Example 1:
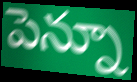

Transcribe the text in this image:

పెన్నూ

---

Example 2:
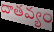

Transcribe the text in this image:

దాతవ్యం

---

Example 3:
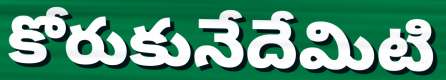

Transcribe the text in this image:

కోరుకునేదేమిటి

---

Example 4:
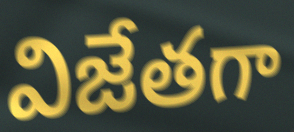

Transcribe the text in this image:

విజేతగా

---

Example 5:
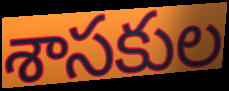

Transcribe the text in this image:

శాసకుల